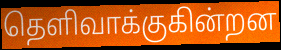
தெளிவாக்குகின்றன